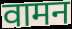
वामन